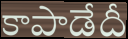
కాపాడేదీ